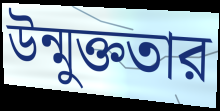
উন্মুক্ততার